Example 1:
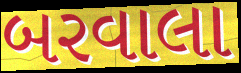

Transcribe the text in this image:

બરવાલા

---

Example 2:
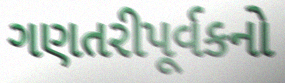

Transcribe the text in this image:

ગણતરીપૂર્વકનો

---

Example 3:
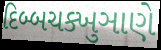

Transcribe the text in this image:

દિબ્બચક્ખુઞાણે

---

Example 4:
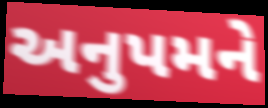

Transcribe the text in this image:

અનુપમને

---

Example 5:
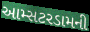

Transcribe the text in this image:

આમ્સટરડામની